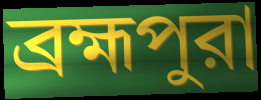
ব্রহ্মপুরা